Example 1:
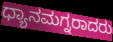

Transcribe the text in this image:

ಧ್ಯಾನಮಗ್ನರಾದರು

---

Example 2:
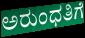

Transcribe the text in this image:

ಅರುಂಧತಿಗೆ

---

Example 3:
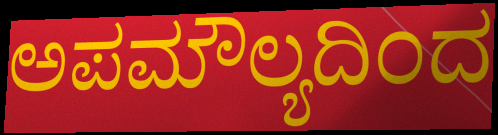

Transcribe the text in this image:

ಅಪಮೌಲ್ಯದಿಂದ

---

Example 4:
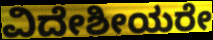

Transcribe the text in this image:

ವಿದೇಶೀಯರೇ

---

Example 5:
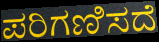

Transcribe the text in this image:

ಪರಿಗಣಿಸದೆ